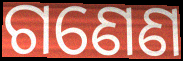
ଗଣେଣ